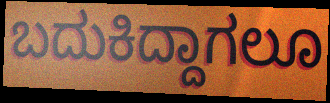
ಬದುಕಿದ್ದಾಗಲೂ